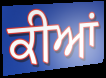
ਕੀਆਂ